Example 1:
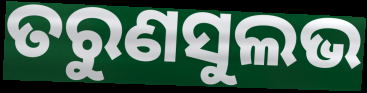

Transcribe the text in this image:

ତରୁଣସୁଲଭ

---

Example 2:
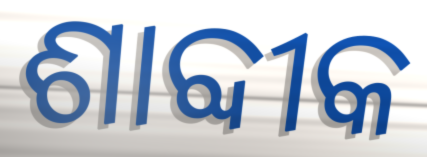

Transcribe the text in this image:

ଶାବ୍ଦୀକ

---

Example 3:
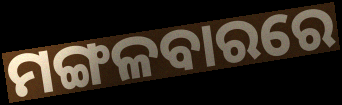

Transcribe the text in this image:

ମଙ୍ଗଳବାରରେ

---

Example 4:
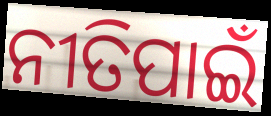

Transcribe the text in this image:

ନୀତିପାଇଁ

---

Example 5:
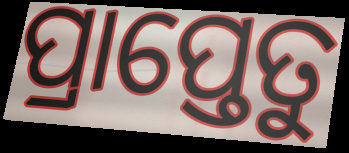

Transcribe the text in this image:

ପ୍ରାପ୍ତେତୁ